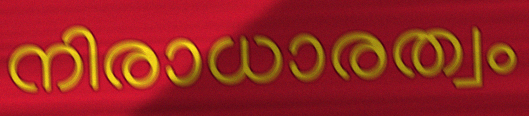
നിരാധാരത്വം